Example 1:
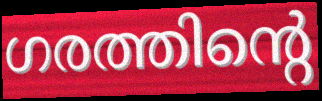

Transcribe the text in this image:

ഗരത്തിന്റെ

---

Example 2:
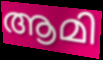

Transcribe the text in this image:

ആമി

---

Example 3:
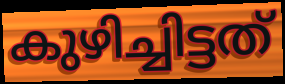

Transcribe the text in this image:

കുഴിച്ചിട്ടത്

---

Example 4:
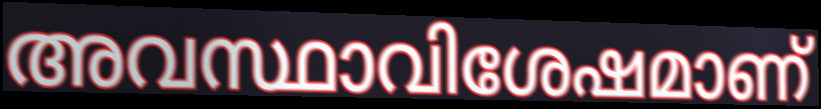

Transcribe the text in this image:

അവസ്ഥാവിശേഷമാണ്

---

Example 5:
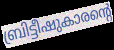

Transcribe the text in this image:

ബ്രിട്ടീഷുകാരന്റെ